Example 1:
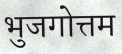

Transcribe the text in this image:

भुजगोत्तम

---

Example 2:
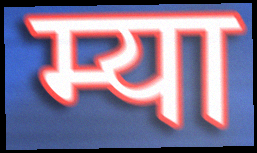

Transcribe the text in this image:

म्या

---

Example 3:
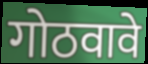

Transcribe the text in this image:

गोठवावे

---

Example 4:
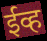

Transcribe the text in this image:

ईव्ह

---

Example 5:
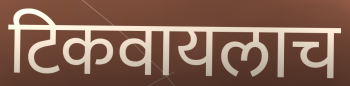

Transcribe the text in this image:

टिकवायलाच